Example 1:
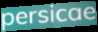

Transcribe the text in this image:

persicae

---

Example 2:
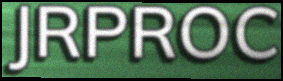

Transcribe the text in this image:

JRPROC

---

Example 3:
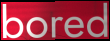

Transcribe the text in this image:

bored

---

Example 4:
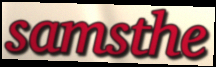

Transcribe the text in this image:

samsthe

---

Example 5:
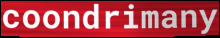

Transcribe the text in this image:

coondrimany